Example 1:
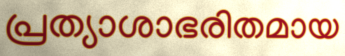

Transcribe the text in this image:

പ്രത്യാശാഭരിതമായ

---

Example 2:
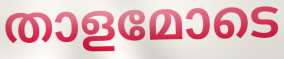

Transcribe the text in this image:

താളമോടെ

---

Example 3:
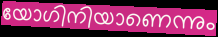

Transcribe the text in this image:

യോഗിനിയാണെന്നും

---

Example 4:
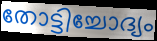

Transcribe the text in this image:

തോട്ടിച്ചോദ്യം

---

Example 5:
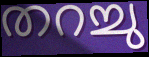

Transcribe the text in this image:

തറച്ചു